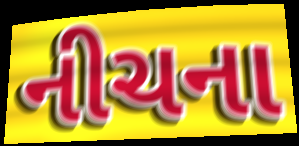
નીચના